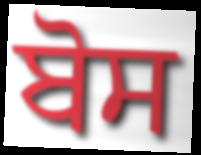
ਬੋਸ